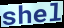
shel